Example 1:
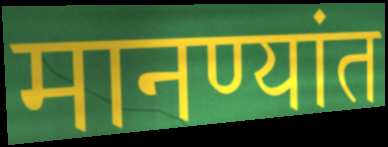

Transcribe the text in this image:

मानण्यांत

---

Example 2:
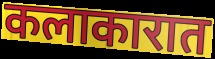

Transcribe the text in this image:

कलाकारात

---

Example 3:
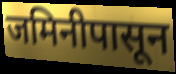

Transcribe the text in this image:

जमिनीपासून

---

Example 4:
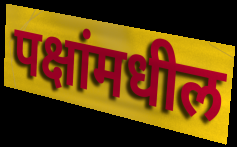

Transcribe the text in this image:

पक्षांमधील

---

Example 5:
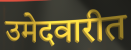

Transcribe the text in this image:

उमेदवारीत